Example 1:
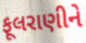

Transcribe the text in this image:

ફૂલરાણીને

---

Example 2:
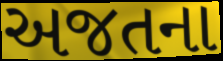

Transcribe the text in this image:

અજતના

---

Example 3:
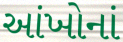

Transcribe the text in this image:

આંખોનાં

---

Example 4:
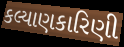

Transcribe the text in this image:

કલ્યાણકારિણી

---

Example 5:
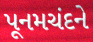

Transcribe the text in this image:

પૂનમચંદને